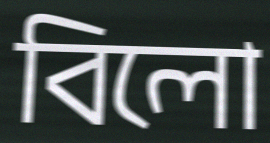
বিলো